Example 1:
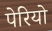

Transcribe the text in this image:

पेरियो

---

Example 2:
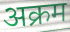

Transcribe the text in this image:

अक्रम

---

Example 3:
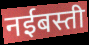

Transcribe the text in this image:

नईबस्ती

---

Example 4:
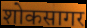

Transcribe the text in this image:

शोकसागर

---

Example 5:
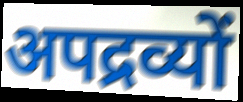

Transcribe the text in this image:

अपद्रव्यों